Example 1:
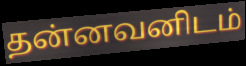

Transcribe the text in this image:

தன்னவனிடம்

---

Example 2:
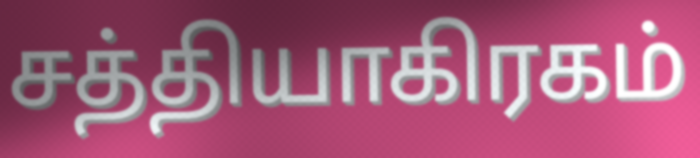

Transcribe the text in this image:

சத்தியாகிரகம்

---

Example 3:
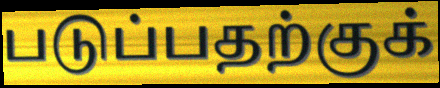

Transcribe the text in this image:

படுப்பதற்குக்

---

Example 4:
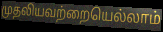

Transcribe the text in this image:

முதலியவற்றையெல்லாம்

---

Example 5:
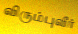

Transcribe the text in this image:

விரும்புவீர்